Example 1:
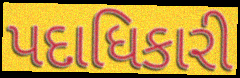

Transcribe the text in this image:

પદાધિકારી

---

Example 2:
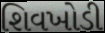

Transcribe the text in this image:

શિવખોડી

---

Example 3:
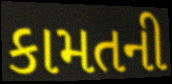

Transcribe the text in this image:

કામતની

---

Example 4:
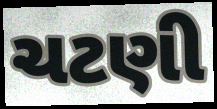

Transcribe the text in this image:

ચટણી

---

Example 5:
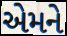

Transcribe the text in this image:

એમને